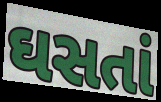
ઘસતાં